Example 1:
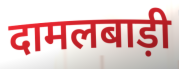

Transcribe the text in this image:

दामलबाड़ी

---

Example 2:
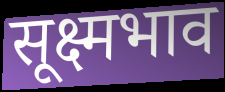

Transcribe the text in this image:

सूक्ष्मभाव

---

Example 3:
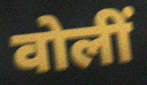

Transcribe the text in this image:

वोलीं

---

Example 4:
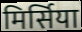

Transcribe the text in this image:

मिर्सिया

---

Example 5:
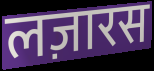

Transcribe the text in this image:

लज़ारस